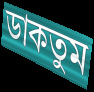
ডাকতুম